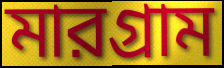
মারগ্রাম